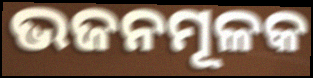
ଭଜନମୂଳକ